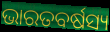
ଭାରତବର୍ଷସ୍ୟ